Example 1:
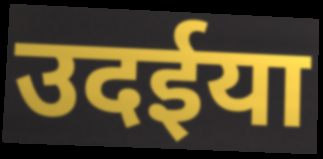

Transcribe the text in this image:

उदईया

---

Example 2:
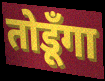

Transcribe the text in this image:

तोडूँगा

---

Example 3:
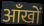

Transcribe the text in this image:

आँखों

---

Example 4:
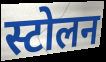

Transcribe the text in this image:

स्टोलन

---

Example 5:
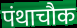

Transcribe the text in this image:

पंथाचौक